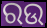
ରଉ